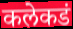
कलेकडं